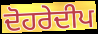
ਦੋਹਰੇਦੀਪ